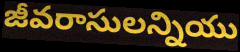
జీవరాసులన్నియు